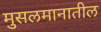
मुसलमानातील